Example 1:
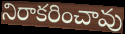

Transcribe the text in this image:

నిరాకరించావు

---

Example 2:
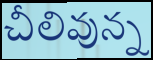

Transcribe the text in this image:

చీలివున్న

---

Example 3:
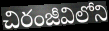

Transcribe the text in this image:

చిరంజీవిలోని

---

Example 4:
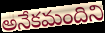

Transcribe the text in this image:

అనేకమందిని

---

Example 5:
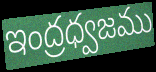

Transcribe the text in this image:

ఇంద్రధ్వజము